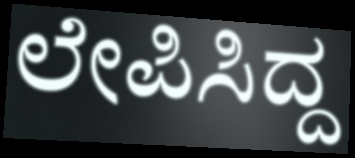
ಲೇಪಿಸಿದ್ದ